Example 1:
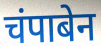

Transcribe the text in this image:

चंपाबेन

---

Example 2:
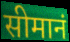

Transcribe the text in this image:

सीमानं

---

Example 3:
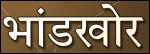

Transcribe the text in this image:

भांडखोर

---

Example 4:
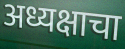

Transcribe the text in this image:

अध्यक्षाचा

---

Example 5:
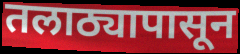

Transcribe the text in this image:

तलाठ्यापासून